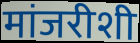
मांजरीशी